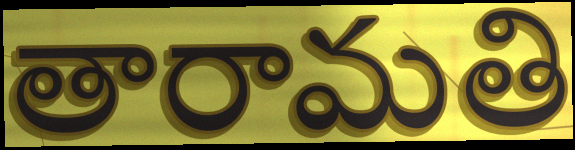
తారామతి